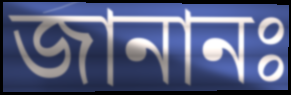
জানানঃ